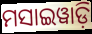
ମସାଇୱାଡ଼ି